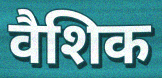
वैशिक